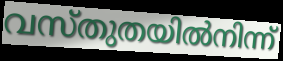
വസ്തുതയിൽനിന്ന്